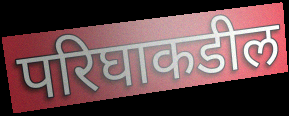
परिघाकडील